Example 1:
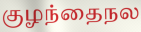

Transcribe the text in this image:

குழந்தைநல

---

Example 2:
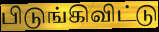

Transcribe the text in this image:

பிடுங்கிவிட்டு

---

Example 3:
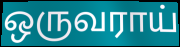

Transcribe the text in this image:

ஒருவராய்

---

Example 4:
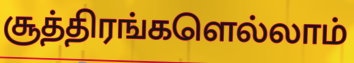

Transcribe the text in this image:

சூத்திரங்களெல்லாம்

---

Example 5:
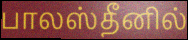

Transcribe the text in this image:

பாலஸ்தீனில்